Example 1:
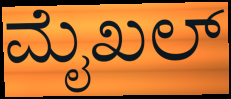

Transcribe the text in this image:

ಮೈಖಲ್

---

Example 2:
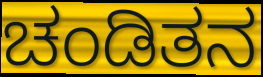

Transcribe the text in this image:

ಚಂಡಿತನ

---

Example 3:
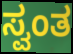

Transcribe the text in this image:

ಸ್ವಂತ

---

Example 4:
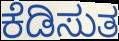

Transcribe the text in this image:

ಕೆಡಿಸುತ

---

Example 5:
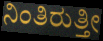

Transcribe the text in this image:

ನಿಂತಿರುತ್ತೀ